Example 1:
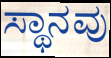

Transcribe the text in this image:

ಸ್ಥಾನವು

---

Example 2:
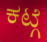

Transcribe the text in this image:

ಕಟ್ಗೆ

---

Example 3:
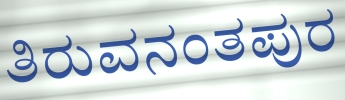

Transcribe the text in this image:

ತಿರುವನಂತಪುರ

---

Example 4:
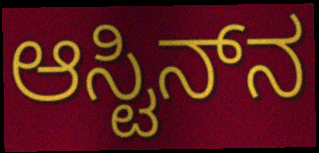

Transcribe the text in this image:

ಆಸ್ಟಿನ್‌ನ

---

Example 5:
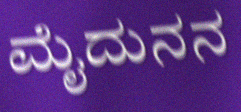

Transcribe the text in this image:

ಮೈದುನನ